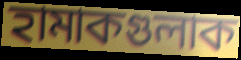
হামাকগুলাক